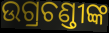
ଉଗ୍ରଚଣ୍ଡୀଙ୍କ